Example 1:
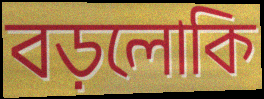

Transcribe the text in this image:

বড়লোকি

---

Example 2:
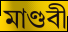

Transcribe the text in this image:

মাণ্ডবী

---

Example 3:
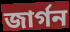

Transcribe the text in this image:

জার্গন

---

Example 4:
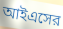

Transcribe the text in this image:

আইএসের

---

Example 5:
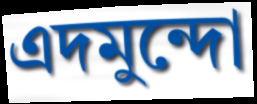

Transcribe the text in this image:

এদমুন্দো